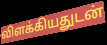
விளக்கியதுடன்